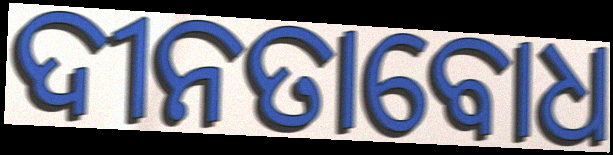
ଦୀନତାବୋଧ